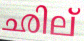
ഛില്